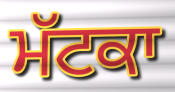
ਮੱਟਕਾ